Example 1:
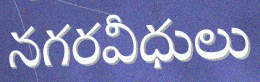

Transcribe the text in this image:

నగరవీధులు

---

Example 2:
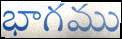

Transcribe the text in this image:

భాగము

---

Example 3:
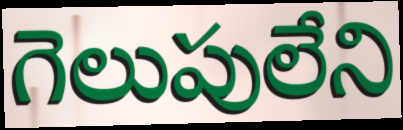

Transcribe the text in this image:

గెలుపులేని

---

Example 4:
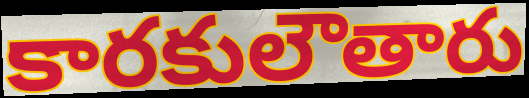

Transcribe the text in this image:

కారకులౌతారు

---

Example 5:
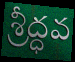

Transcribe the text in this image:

శ్రీద్ధవ